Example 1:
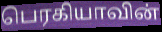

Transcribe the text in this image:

பெரகியாவின்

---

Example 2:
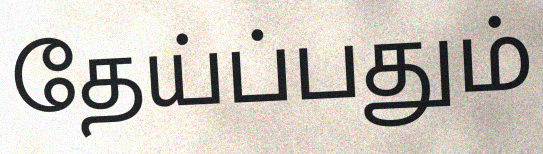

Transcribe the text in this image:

தேய்ப்பதும்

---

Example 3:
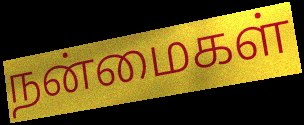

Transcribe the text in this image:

நன்மைகள்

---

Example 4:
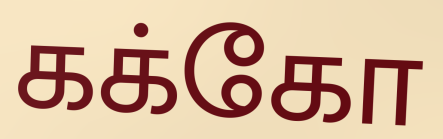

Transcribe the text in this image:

கக்கோ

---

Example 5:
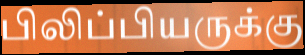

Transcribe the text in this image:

பிலிப்பியருக்கு